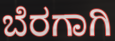
ಬೆರಗಾಗಿ